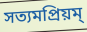
সত্যমপ্রিয়ম্